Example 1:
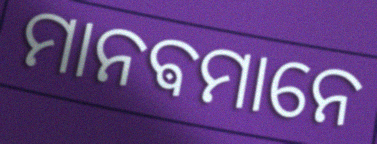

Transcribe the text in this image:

ମାନଵମାନେ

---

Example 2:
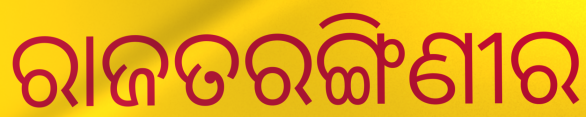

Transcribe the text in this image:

ରାଜତରଙ୍ଗିଣୀର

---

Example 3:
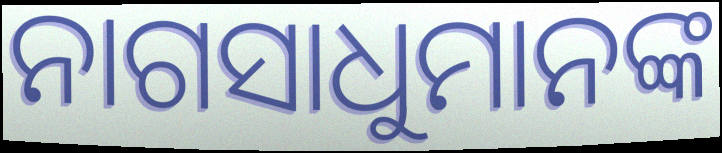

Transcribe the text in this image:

ନାଗସାଧୁମାନଙ୍କ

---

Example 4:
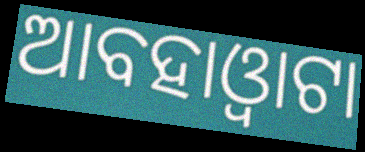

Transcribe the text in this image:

ଆବହାଓ୍ୱାଟା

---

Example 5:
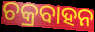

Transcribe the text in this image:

ଚକ୍ରବାହନ